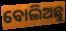
ବୋଲିଅଛୁ